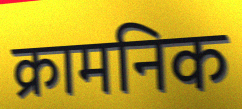
क्रामनिक